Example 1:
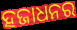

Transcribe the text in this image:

ହଜାଧନର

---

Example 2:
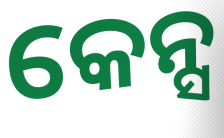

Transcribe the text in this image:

କେନ୍ସ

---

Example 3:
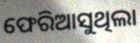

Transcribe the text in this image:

ଫେରିଆସୁଥିଲା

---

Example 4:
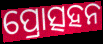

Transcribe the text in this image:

ପ୍ରୋତ୍ସହନ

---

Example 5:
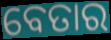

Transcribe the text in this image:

ବେତାର